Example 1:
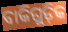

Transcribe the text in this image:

ବାକିଗୁଡ଼ିକ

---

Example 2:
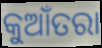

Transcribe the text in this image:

କୁଆଁତରା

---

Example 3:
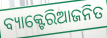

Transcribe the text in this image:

ବ୍ୟାକ୍ଟେରିଆଜନିତ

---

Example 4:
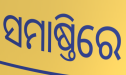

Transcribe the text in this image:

ସମାଷ୍ତିରେ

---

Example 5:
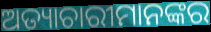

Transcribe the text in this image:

ଅତ୍ୟାଚାରୀମାନଙ୍କର